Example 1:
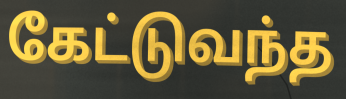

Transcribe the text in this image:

கேட்டுவந்த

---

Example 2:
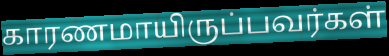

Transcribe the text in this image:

காரணமாயிருப்பவர்கள்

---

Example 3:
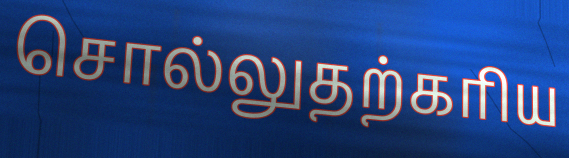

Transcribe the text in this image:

சொல்லுதற்கரிய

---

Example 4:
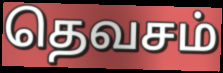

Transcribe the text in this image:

தெவசம்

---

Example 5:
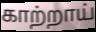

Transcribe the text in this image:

காற்றாய்